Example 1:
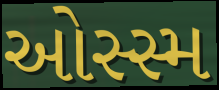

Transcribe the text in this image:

ઓસ્સ્મ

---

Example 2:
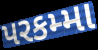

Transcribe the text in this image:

પરકમ્મા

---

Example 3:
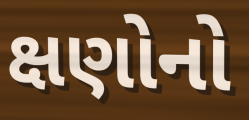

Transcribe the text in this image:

ક્ષણોનો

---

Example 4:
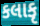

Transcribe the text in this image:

કલાકૃ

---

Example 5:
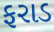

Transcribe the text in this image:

ફરાડ